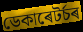
ডেকাৰেটৰ্চৰ